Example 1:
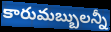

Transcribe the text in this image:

కారుమబ్బులన్నీ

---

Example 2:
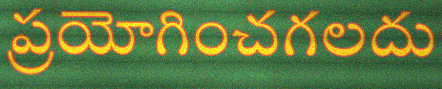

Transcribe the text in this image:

ప్రయోగించగలదు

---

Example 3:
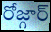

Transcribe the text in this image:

రోజ్గార్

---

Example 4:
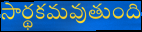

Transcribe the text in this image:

సార్థకమవుతుంది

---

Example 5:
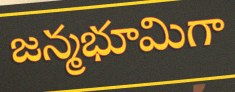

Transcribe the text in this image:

జన్మభూమిగా